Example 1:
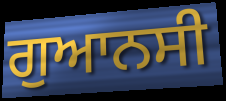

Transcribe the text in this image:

ਗੁਆਨਸੀ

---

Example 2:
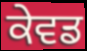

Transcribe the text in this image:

ਕੇਵਡ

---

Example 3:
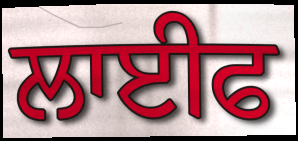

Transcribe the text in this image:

ਲਾਈਫ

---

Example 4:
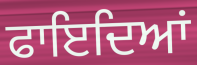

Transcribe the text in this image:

ਫਾਇਦਿਆਂ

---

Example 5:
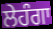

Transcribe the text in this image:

ਲੇਹੰਗਾ